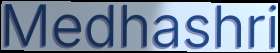
Medhashri